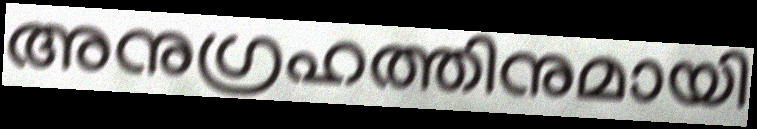
അനുഗ്രഹത്തിനുമായി